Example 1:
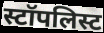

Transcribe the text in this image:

स्टॉपलिस्ट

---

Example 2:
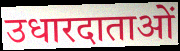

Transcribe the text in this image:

उधारदाताओं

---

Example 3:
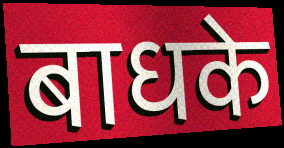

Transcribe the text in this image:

बाधके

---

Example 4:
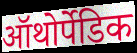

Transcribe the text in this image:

ऑथोर्पेडिक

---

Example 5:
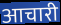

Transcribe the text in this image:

आचारी